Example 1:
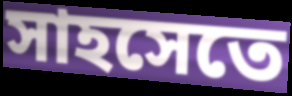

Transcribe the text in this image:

সাহসেতে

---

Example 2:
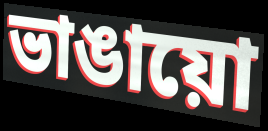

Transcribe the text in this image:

ভাঙায়ো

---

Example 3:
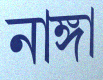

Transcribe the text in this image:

নাঙ্গা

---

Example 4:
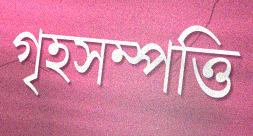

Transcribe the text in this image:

গৃহসম্পত্তি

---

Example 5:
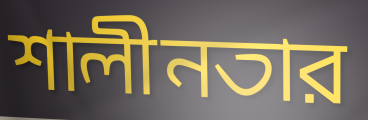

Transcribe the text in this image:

শালীনতার